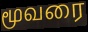
மூவரை